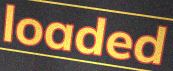
loaded